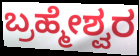
ಬ್ರಹ್ಮೇಶ್ವರ